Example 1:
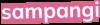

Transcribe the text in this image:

sampangi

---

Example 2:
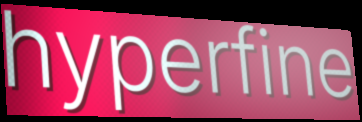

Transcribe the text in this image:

hyperfine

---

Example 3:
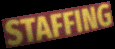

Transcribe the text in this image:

STAFFING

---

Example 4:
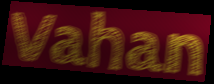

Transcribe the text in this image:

Vahan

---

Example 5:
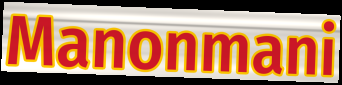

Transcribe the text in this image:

Manonmani